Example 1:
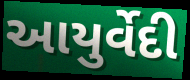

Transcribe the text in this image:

આયુર્વેદી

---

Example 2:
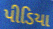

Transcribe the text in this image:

પીડિયા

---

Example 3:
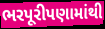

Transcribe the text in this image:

ભરપૂરીપણામાંથી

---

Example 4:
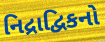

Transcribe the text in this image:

નિદ્રાદ્વિકનો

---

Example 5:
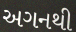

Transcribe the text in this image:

અગનથી